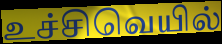
உச்சிவெயில்